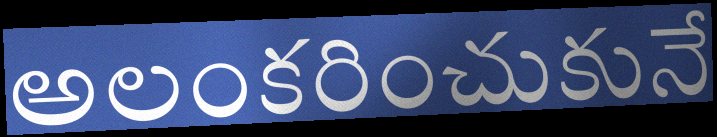
అలంకరించుకునే